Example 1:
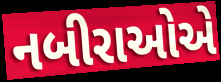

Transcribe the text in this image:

નબીરાઓએ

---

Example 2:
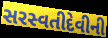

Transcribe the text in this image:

સરસ્વતીદેવીની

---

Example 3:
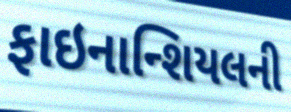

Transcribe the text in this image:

ફાઇનાન્શિયલની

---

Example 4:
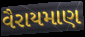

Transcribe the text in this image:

વૈરાયમાણ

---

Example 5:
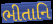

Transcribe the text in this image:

ભીતાનિ